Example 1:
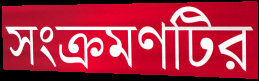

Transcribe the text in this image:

সংক্রমণটির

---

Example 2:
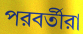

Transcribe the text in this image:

পরবর্তীরা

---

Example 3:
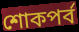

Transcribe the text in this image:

শোকপর্ব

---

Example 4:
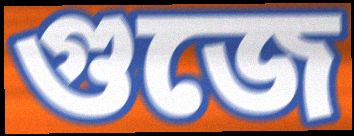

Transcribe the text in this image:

গুজে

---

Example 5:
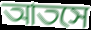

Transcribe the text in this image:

আতসে